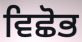
ਵਿਛੋਭ